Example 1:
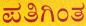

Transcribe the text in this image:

ಪತಿಗಿಂತ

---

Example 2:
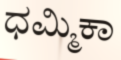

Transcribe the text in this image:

ಧಮ್ಮಿಕಾ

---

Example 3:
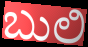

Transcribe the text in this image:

ಬುಲಿ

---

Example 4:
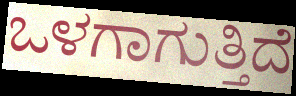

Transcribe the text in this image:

ಒಳಗಾಗುತ್ತಿದೆ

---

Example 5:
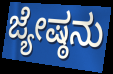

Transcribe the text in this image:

ಜ್ಯೇಷ್ಠನು